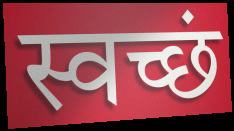
स्वच्छं